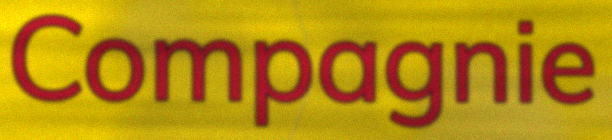
Compagnie